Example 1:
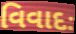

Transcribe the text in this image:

વિવાદઃ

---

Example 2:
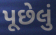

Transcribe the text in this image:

પૂછેલું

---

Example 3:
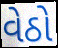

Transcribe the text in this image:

વેઠો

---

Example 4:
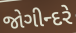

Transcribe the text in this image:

જોગીન્દરે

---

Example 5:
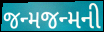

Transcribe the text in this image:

જન્મજન્મની